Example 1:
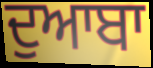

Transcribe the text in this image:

ਦੁਆਬਾ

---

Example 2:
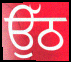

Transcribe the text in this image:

ਉੱਠ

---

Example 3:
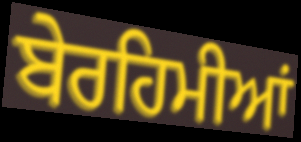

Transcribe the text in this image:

ਬੇਰਹਿਮੀਆਂ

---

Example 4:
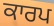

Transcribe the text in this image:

ਕਾਰਪ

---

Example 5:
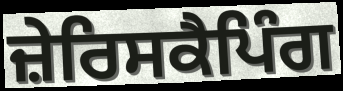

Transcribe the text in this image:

ਜ਼ੇਰਿਸਕੈਪਿੰਗ